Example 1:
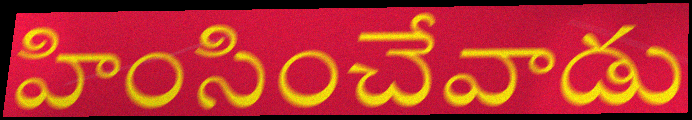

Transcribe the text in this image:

హింసించేవాడు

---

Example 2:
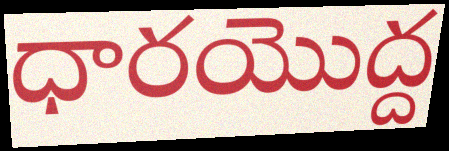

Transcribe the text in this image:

ధారయొద్ద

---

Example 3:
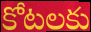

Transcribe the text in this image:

కోటలకు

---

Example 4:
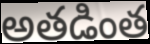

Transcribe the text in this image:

అతడింత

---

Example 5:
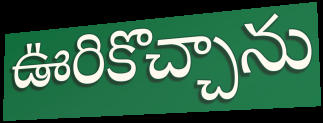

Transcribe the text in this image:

ఊరికొచ్చాను